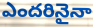
ఎందరినైనా